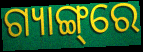
ଗ୍ୟାଙ୍ଗ୍‌ରେ